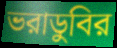
ভরাডুবির